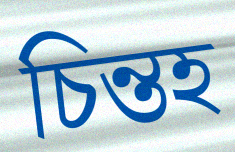
চিন্তহ